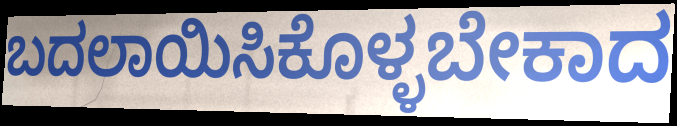
ಬದಲಾಯಿಸಿಕೊಳ್ಳಬೇಕಾದ